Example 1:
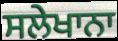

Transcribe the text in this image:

ਸਲੇਖਾਨਾ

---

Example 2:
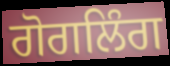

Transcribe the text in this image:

ਗੋਗਲਿੰਗ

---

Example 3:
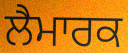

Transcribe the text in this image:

ਲੈਮਾਰਕ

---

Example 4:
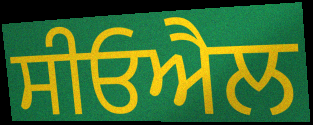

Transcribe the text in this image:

ਸੀਓਐਲ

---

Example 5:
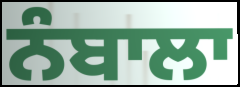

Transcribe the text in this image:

ਨੰਬਾਲਾ